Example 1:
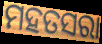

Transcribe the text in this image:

ମହତସରା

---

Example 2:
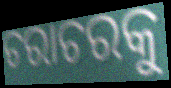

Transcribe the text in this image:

ଚରାଚରକୁ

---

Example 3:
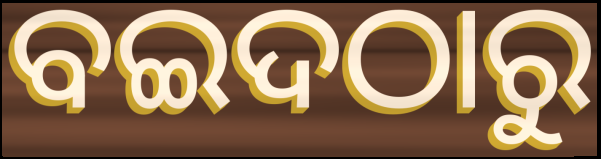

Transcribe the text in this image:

ବଇଦଠାରୁ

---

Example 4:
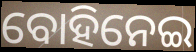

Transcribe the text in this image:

ବୋହିନେଇ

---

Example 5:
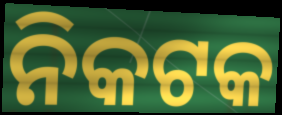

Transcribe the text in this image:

ନିକଟକ